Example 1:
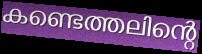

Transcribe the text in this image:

കണ്ടെത്തലിന്റെ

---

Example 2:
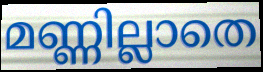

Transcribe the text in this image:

മണ്ണില്ലാതെ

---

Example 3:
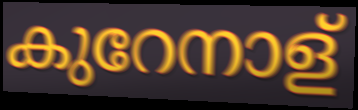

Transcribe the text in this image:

കുറേനാള്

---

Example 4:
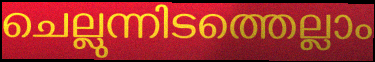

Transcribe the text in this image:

ചെല്ലുന്നിടത്തെല്ലാം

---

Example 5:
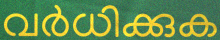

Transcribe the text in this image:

വർധിക്കുക